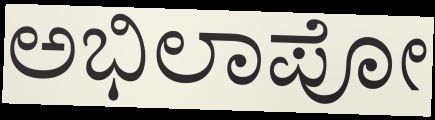
ಅಭಿಲಾಪೋ